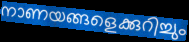
നാണയങ്ങളെക്കുറിച്ചും